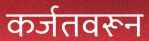
कर्जतवरून